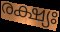
രക്ഷ്യഃ